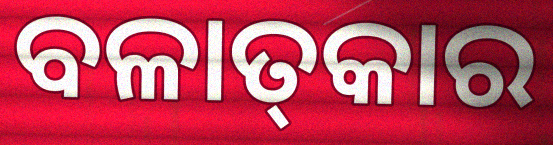
ବଳାତ୍‌କାର